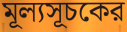
মূল্যসূচকের